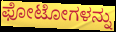
ಫೋಟೋಗಳನ್ನು